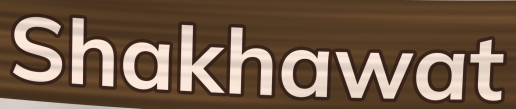
Shakhawat